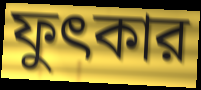
ফুৎকার